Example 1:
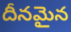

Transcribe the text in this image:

దీనమైన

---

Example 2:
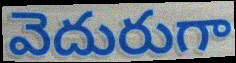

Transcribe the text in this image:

వెదురుగా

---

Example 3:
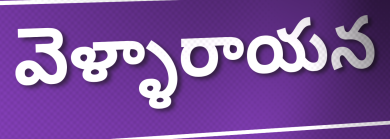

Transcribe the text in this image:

వెళ్ళారాయన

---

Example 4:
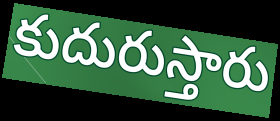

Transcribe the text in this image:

కుదురుస్తారు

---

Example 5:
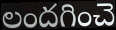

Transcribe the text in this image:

లందగించె